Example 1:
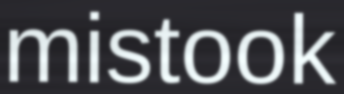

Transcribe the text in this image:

mistook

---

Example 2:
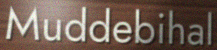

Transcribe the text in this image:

Muddebihal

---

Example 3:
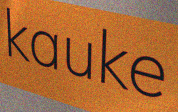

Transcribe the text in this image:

kauke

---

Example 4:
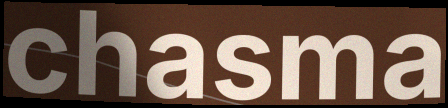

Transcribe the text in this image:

chasma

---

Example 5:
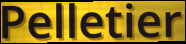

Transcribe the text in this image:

Pelletier